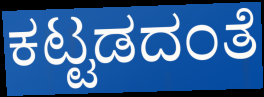
ಕಟ್ಟಡದಂತೆ